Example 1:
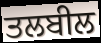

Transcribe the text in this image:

ਤਲਬੀਲ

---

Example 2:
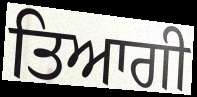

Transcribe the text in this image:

ਤਿਆਗੀ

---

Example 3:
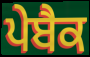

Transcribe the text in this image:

ਪੇਬੈਕ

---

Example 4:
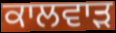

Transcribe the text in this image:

ਕਾਲਵਾੜ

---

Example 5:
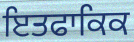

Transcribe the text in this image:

ਇਤਫਾਕਿਕ